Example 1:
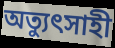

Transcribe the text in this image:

অত্যুৎসাহী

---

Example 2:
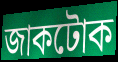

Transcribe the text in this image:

জাকটোক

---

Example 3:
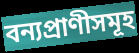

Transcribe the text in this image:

বন্যপ্ৰাণীসমূহ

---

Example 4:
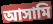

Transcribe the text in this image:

আসামি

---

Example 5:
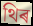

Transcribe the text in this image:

থিৰ